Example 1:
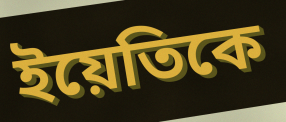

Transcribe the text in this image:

ইয়েতিকে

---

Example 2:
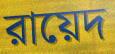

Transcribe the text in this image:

রায়েদ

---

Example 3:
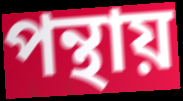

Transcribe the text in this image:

পন্থায়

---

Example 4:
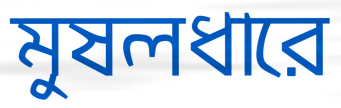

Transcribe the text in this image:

মুষলধারে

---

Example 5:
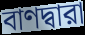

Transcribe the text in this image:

বাণদ্বারা